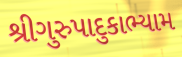
શ્રીગુરુપાદુકાભ્યામ